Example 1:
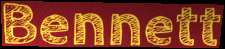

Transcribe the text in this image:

Bennett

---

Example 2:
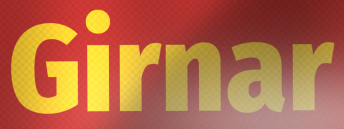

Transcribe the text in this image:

Girnar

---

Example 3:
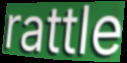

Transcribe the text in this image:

rattle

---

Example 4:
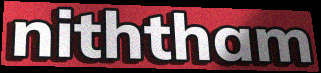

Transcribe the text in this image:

niththam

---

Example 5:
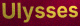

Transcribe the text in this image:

Ulysses